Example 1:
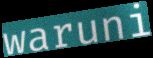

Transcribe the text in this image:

waruni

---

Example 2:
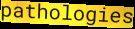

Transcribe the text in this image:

pathologies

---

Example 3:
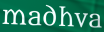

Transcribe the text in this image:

madhva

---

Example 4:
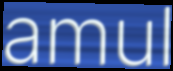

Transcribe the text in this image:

amul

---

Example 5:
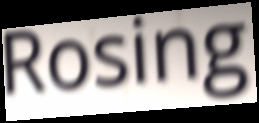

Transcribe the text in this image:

Rosing